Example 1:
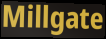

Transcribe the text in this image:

Millgate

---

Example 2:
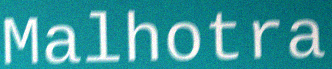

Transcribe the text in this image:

Malhotra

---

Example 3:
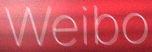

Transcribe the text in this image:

Weibo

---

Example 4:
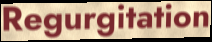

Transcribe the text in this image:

Regurgitation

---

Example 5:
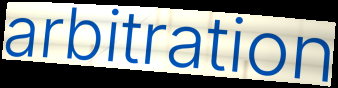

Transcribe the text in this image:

arbitration